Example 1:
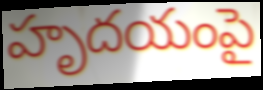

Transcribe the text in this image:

హృదయంపై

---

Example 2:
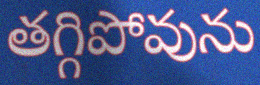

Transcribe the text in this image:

తగ్గిపోవును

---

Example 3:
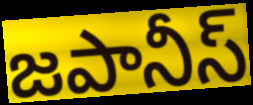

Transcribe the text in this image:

జపానీస్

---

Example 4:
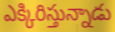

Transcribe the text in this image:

ఎక్కిరిస్తున్నాడు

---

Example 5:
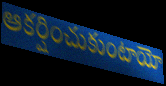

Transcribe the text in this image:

ఆకర్షించుకుంటాయో